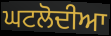
ਘਟਲੋਦੀਆ